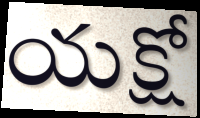
యక్షో